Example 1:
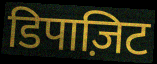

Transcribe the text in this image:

डिपाज़िट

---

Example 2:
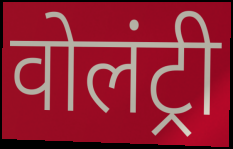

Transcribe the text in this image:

वोलंट्री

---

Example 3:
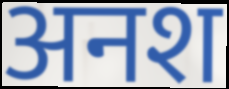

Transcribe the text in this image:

अनश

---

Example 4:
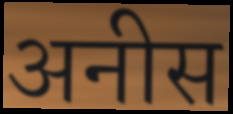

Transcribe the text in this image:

अनीस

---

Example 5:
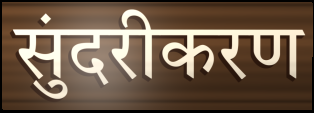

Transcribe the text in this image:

सुंदरीकरण